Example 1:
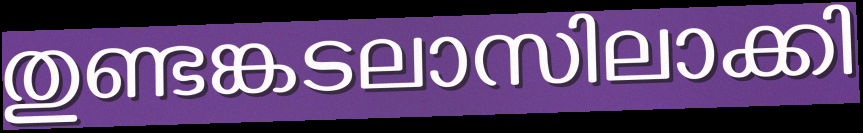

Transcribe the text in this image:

തുണ്ടങ്കടലാസിലാക്കി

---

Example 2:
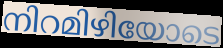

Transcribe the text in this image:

നിറമിഴിയോടെ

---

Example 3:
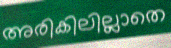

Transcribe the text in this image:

അരികിലില്ലാതെ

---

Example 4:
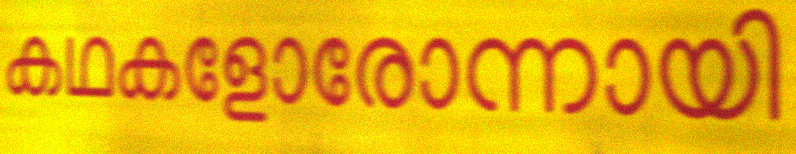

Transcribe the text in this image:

കഥകളോരോന്നായി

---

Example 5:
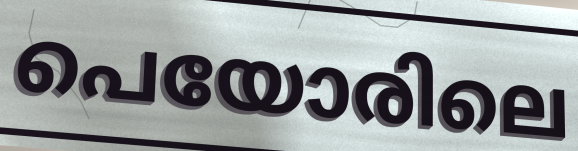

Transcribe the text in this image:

പെയോരിലെ